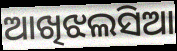
ଆଖିଝଲସିଆ